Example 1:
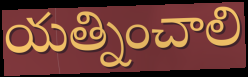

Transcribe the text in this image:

యత్నించాలి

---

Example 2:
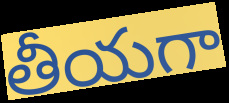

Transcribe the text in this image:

తీయగా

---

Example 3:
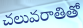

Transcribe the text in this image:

చలువరాతితో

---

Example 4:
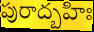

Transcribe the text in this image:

పురాద్బహిః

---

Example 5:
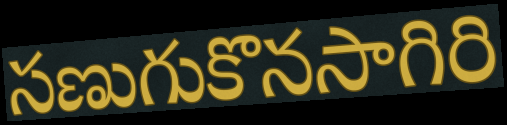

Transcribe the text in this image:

సణుగుకొనసాగిరి